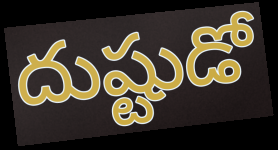
దుష్టుడో